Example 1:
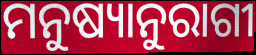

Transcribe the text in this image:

ମନୁଷ୍ୟାନୁରାଗୀ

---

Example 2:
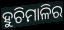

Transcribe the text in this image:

ହୁଚିମାଳିର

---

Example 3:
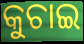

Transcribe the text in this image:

କୁଚାଇ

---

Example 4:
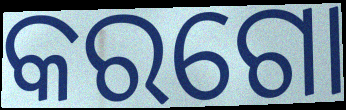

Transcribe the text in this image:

କରଗୋ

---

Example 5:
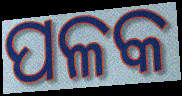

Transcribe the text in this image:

ପଳକ